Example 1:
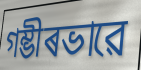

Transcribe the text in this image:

গম্ভীৰভাৱে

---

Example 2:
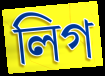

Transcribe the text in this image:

লিগ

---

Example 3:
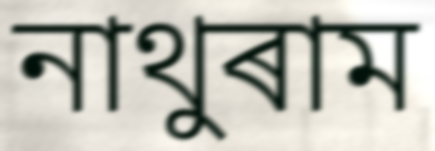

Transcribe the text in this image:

নাথুৰাম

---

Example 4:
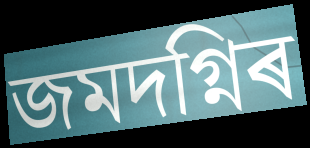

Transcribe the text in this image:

জমদগ্নিৰ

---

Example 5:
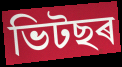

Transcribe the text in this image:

ভিটছৰ